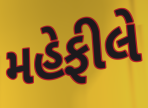
મહેફીલે